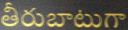
తీరుబాటుగా